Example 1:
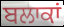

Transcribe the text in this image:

ਬਲਾਕਾਂ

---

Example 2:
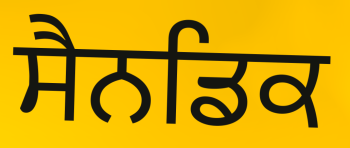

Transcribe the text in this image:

ਸੈਨਡਿਕ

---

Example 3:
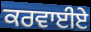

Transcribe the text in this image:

ਕਰਵਾਈਏ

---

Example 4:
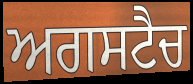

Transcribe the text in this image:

ਅਗਸਟੈਚ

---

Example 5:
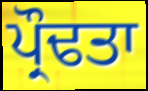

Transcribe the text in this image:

ਪ੍ਰੌਢਤਾ